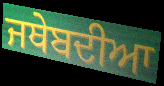
ਜਥੇਬਦੀਆ